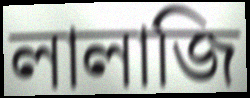
লালাজি